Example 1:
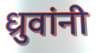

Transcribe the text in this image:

ध्रुवांनी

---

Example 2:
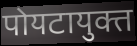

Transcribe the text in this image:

पोयटायुक्त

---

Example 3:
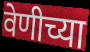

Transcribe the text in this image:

वेणीच्या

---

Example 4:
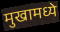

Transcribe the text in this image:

मुखामध्ये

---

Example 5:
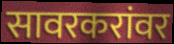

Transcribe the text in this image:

सावरकरांवर